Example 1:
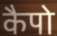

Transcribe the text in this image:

कैपो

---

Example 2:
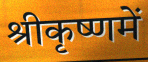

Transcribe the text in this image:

श्रीकृष्णमें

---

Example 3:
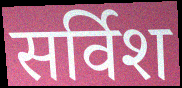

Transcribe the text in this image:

सर्विश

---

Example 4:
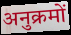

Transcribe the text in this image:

अनुक्रमों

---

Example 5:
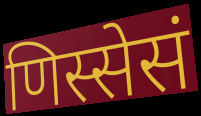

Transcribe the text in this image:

णिस्सेसं